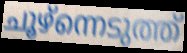
ചൂഴ്ന്നെടുത്ത്